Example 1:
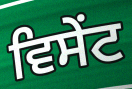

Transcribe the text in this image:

ਵਿਸੇਂਟ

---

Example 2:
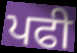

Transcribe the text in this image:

ਪਫੀ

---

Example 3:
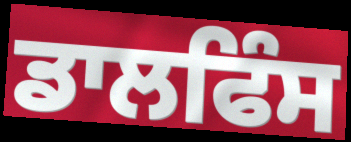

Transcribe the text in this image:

ਡਾਲਫਿੰਸ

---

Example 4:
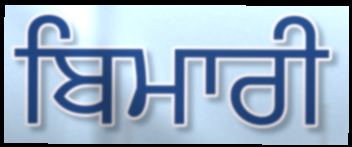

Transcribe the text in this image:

ਬਿਮਾਰੀ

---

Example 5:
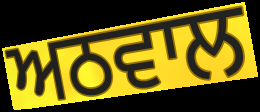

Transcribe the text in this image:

ਅਠਵਾਲ